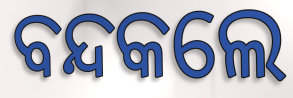
ବନ୍ଦକଲେ